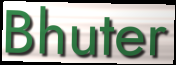
Bhuter